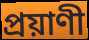
প্রয়াণী